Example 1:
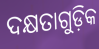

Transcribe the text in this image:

ଦକ୍ଷତାଗୁଡ଼ିକ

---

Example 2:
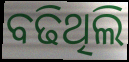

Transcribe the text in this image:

ବଢିଥିଲି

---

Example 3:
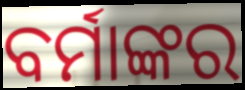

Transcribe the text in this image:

ବର୍ମାଙ୍କର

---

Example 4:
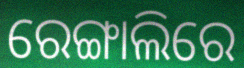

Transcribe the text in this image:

ରେଙ୍ଗାଲିରେ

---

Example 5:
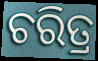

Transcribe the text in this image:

ଚରିତ୍ର